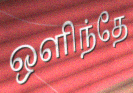
ஒளிந்தே